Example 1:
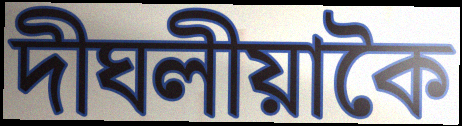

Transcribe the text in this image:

দীঘলীয়াকৈ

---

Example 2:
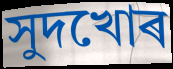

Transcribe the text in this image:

সুদখোৰ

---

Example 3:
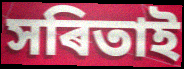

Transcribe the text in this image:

সৰিতাই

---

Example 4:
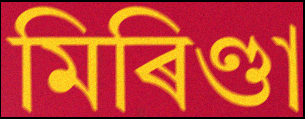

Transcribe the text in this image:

মিৰিণ্ডা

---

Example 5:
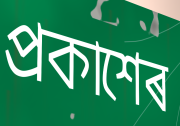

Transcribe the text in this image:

প্ৰকাশেৰ